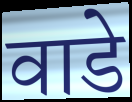
वाडे